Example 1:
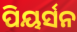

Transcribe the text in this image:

ପିୟର୍ସନ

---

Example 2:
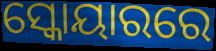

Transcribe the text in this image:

ସ୍କୋୟାରରେ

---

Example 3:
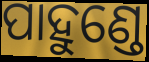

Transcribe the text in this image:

ପାହୁଣ୍ଡେ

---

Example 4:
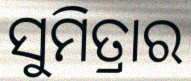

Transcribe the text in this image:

ସୁମିତ୍ରାର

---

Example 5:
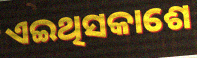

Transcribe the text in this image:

ଏଇଥିସକାଶେ